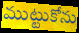
ముట్టుకోను